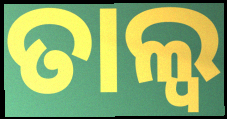
ତାଲ୍ୱ